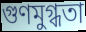
গুণমুগ্ধতা